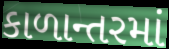
કાળાન્તરમાં